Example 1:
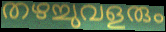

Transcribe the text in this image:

തഴച്ചുവളരും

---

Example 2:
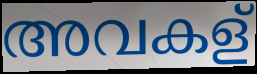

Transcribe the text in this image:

അവകള്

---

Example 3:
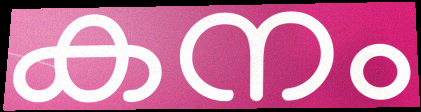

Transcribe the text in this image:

കനം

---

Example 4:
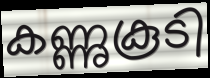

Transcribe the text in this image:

കണ്ണുകൂടി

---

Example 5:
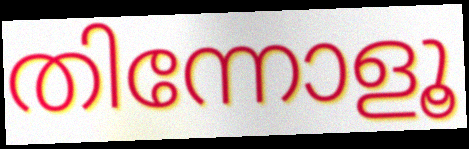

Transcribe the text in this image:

തിന്നോളൂ